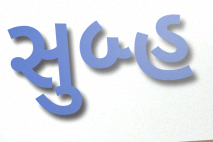
સુબ્હ